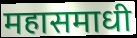
महासमाधी